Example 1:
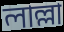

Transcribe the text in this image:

লাল্লা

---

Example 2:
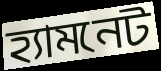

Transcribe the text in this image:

হ্যামনেট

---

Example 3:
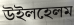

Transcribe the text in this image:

উইলহেলম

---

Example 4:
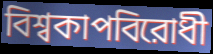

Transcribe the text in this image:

বিশ্বকাপবিরোধী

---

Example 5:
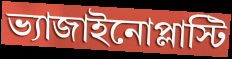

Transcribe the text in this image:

ভ্যাজাইনোপ্লাস্টি